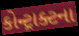
કોન્ટ્રાક્ટના